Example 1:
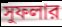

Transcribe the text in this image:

সুফলার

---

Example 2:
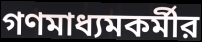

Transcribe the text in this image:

গণমাধ্যমকর্মীর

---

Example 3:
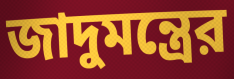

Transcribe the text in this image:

জাদুমন্ত্রের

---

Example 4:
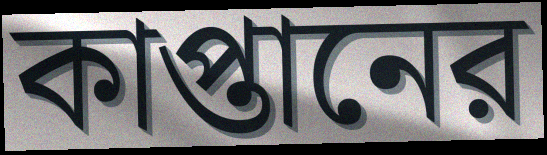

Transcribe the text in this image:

কাপ্তানের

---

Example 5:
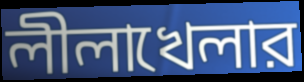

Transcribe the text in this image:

লীলাখেলার